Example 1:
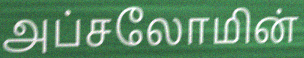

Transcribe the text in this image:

அப்சலோமின்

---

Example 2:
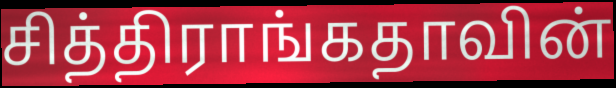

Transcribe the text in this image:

சித்திராங்கதாவின்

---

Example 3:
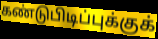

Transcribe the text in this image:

கண்டுபிடிப்புக்குக்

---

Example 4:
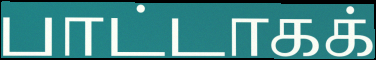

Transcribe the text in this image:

பாட்டாகக்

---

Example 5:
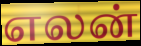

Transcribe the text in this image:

எலன்